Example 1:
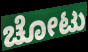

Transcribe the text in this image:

ಚೋಟು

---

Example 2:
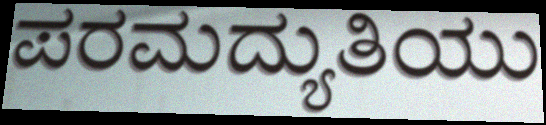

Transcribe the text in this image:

ಪರಮದ್ಯುತಿಯು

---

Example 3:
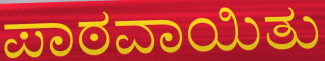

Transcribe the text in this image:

ಪಾಠವಾಯಿತು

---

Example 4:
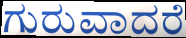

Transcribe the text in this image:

ಗುರುವಾದರೆ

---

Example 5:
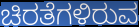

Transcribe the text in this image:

ಚಿರತೆಗಳಿರುವ